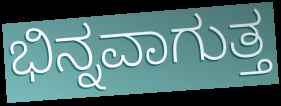
ಭಿನ್ನವಾಗುತ್ತ